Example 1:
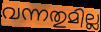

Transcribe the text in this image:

വന്നതുമില്ല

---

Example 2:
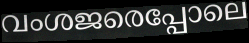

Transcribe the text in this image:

വംശജരെപ്പോലെ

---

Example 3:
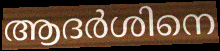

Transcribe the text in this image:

ആദർശിനെ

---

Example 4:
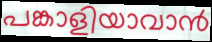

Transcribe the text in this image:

പങ്കാളിയാവാൻ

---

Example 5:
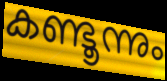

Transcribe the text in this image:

കണ്ടൂന്നും